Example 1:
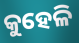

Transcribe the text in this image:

କୁହେଳି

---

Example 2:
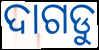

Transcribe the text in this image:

ଦାଗଡୁ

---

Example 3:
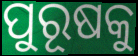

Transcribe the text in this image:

ପୁରୂଷକୁ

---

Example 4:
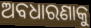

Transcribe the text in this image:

ଅବଧାରଣାକୁ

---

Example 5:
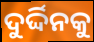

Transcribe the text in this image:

ଦୁର୍ଦ୍ଦିନକୁ